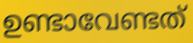
ഉണ്ടാവേണ്ടത്